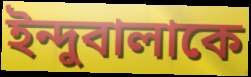
ইন্দুবালাকে